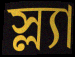
স্ল্যা